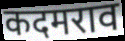
कदमराव